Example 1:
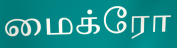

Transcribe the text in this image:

மைக்ரோ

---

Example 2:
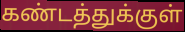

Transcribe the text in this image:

கண்டத்துக்குள்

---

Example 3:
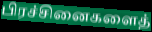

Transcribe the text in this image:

பிரச்சினைகளைத்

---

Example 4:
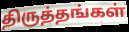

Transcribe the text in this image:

திருத்தங்கள்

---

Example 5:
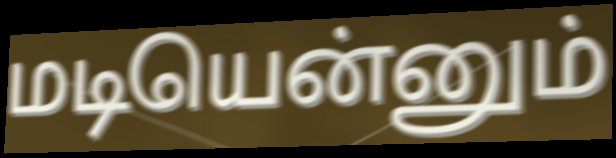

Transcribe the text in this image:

மடியென்னும்